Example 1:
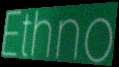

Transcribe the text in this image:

Ethno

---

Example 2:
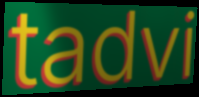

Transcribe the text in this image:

tadvi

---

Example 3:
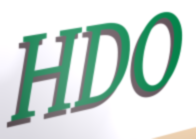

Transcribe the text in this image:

HDO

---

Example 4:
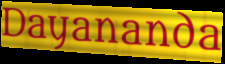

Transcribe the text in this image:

Dayananda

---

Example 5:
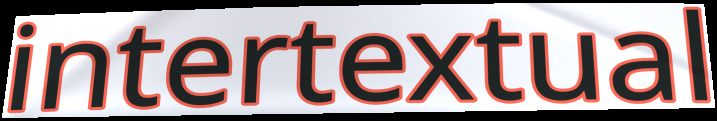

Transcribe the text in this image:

intertextual